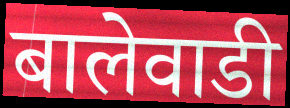
बालेवाडी